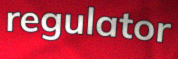
regulator